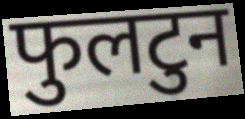
फुलटुन